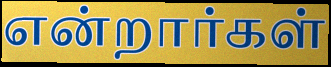
என்றார்கள்